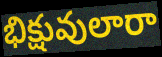
భిక్షువులారా